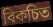
বিকচিত